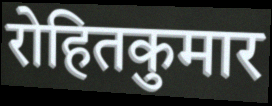
रोहितकुमार